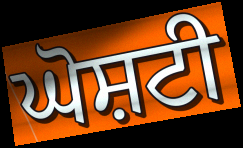
ਘੋਸ਼ਟੀ